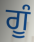
ਗੂੰ